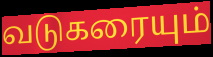
வடுகரையும்